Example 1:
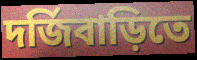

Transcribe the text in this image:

দর্জিবাড়িতে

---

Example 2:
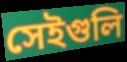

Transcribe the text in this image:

সেইগুলি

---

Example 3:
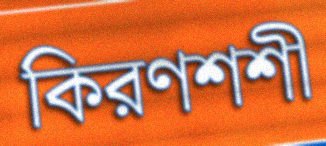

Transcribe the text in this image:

কিরণশশী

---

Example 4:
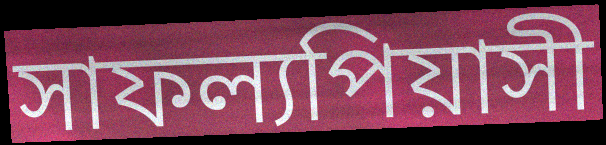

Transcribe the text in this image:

সাফল্যপিয়াসী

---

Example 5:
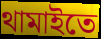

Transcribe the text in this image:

থামাইতে